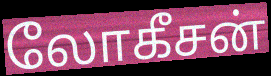
லோகீசன்